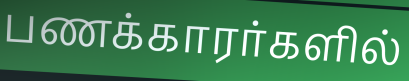
பணக்காரர்களில்